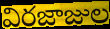
విరజాజుల